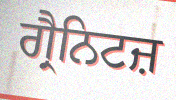
ਗ੍ਰੈਨਿਟਜ਼